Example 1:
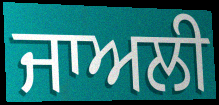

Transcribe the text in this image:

ਜਾਅਲੀ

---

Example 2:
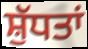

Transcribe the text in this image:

ਸ਼ੁੱਧਤਾਂ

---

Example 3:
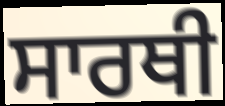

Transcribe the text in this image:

ਸਾਰਥੀ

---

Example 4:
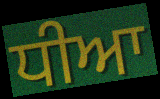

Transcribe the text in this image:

ਧੀਆ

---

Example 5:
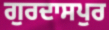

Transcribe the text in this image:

ਗੁਰਦਾਸਪੁਰ